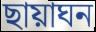
ছায়াঘন